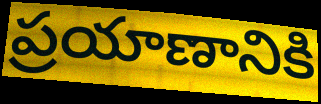
ప్రయాణానికి